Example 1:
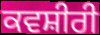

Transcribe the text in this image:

ਕਵਸ਼ੀਰੀ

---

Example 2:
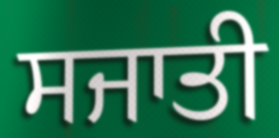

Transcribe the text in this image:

ਸਜਾਤੀ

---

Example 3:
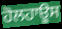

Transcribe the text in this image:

ਹੋਲਹਾਊਸ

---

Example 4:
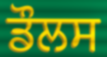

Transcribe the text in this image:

ਡੌਲਸ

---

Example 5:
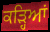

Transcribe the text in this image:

ਕੜ੍ਹਿਆਂ